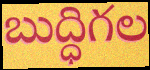
బుద్ధిగల